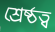
শ্রেষ্ঠত্ব